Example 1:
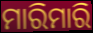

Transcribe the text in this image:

ମାରିମାରି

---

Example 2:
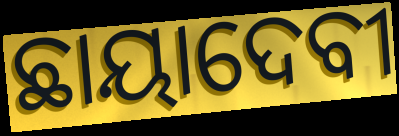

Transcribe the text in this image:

ଛାୟାଦେବୀ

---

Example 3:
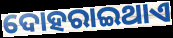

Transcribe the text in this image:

ଦୋହରାଇଥାଏ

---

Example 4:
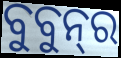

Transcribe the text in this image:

ବୁବୁନ୍‌ର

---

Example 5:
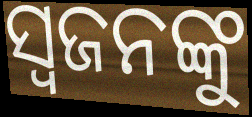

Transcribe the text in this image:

ସ୍ଵଜନଙ୍କୁ